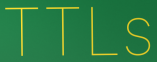
TTLs